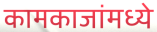
कामकाजांमध्ये